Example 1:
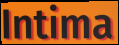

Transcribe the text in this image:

Intima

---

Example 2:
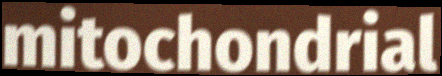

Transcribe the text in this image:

mitochondrial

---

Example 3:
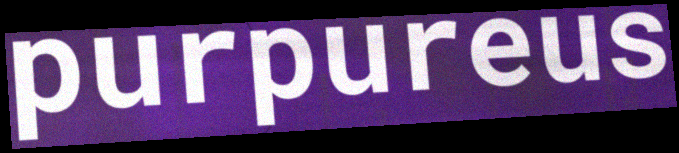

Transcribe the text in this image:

purpureus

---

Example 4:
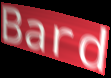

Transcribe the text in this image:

Bard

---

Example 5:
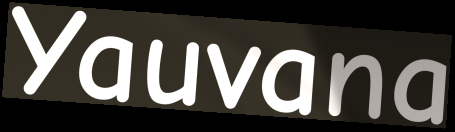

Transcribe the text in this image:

Yauvana